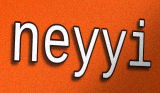
neyyi